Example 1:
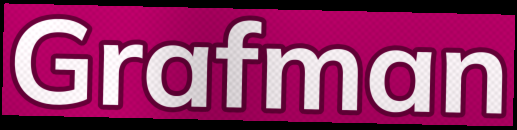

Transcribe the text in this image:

Grafman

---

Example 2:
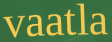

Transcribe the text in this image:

vaatla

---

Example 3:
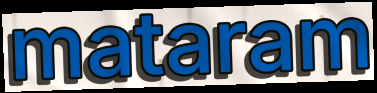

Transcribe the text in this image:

mataram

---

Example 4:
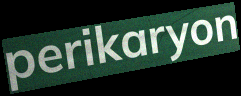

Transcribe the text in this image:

perikaryon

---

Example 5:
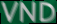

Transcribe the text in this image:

VND